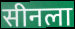
सीनला